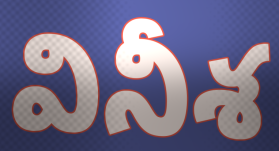
వినీశ